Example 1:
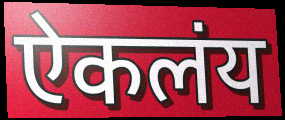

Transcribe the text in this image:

ऐकलंय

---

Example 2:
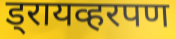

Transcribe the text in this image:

ड्रायव्हरपण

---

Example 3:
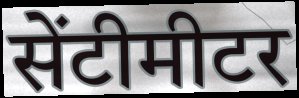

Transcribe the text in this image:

सेंटीमीटर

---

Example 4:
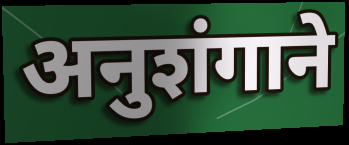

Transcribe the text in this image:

अनुशंगाने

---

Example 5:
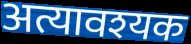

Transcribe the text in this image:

अत्यावश्‍यक